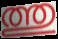
ത്തു